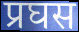
प्रघस